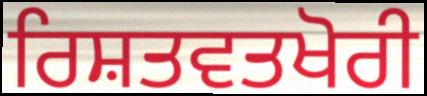
ਰਿਸ਼ਤਵਤਖੋਰੀ